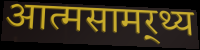
आत्मसामर्थ्य